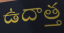
ఉదాత్త